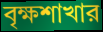
বৃক্ষশাখার